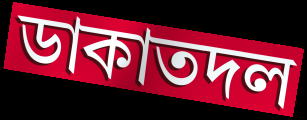
ডাকাতদল